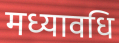
मध्यावधि